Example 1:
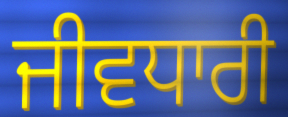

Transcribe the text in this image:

ਜੀਵਧਾਰੀ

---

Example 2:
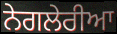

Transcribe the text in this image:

ਨੇਗਲੇਰੀਆ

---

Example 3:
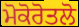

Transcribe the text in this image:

ਮੋਕੋਰੋਤਲੋ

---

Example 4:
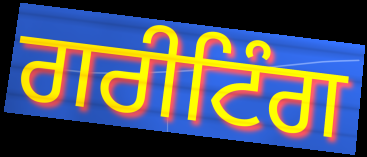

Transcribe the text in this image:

ਗਰੀਟਿੰਗ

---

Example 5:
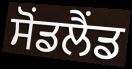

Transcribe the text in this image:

ਸੋਂਡਲੈਂਡ